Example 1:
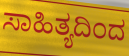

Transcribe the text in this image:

ಸಾಹಿತ್ಯದಿಂದ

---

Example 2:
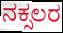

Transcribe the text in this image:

ನಕ್ಸಲರ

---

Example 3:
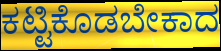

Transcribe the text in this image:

ಕಟ್ಟಿಕೊಡಬೇಕಾದ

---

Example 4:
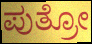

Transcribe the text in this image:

ಪುತ್ರೋ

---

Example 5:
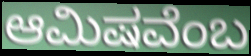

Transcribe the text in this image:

ಆಮಿಷವೆಂಬ